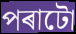
পৰাটো